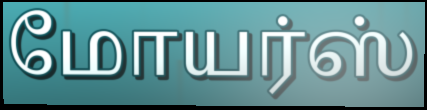
மோயர்ஸ்